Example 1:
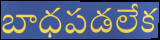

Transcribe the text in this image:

బాధపడలేక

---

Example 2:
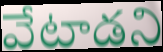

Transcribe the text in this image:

వేటాడని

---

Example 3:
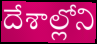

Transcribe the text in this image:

దేశాల్లోని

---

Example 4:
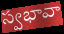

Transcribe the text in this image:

స్వభావా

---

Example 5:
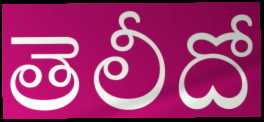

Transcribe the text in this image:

తెలీదో